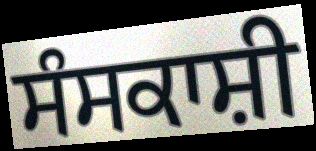
ਸੰਸਕਾਸ਼ੀ